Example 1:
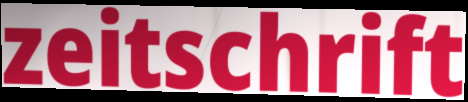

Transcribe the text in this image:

zeitschrift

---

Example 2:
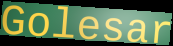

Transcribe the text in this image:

Golesar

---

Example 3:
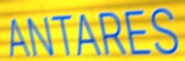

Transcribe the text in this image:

ANTARES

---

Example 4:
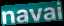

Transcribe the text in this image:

navai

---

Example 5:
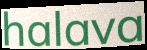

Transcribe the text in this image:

halava